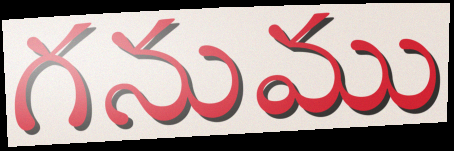
గనుము